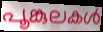
പൂങ്കുലകൾ